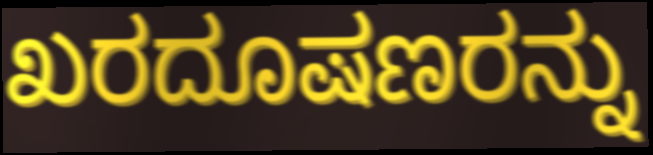
ಖರದೂಷಣರನ್ನು